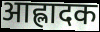
आह्लादक